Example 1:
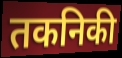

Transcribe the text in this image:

तकनिकी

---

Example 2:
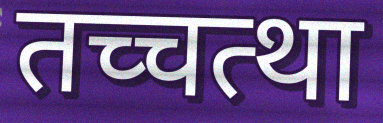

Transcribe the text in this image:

तच्चत्था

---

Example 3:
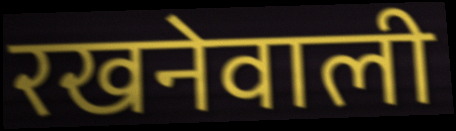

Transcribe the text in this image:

रखनेवाली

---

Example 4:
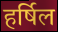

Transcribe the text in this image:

हर्षिल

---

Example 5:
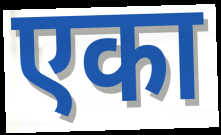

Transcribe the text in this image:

एका